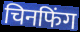
चिनफिंग